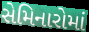
સેમિનારોમાં